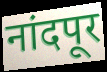
नांदपूर